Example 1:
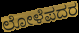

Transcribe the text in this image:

ಲೋಳೆಪದರ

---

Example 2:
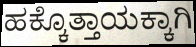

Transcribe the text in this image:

ಹಕ್ಕೊತ್ತಾಯಕ್ಕಾಗಿ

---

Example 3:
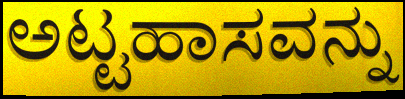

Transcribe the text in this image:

ಅಟ್ಟಹಾಸವನ್ನು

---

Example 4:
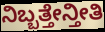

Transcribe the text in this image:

ನಿಬ್ಬತ್ತೇನ್ತೀತಿ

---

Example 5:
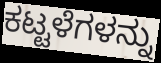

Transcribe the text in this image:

ಕಟ್ಟಳೆಗಳನ್ನು